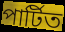
পাৰ্টিত